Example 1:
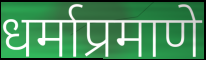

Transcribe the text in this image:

धर्माप्रमाणे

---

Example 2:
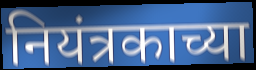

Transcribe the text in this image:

नियंत्रकाच्या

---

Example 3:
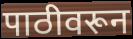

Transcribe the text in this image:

पाठीवरून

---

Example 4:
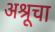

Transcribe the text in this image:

अश्रूचा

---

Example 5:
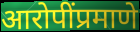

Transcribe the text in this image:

आरोपींप्रमाणे